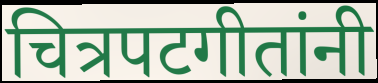
चित्रपटगीतांनी